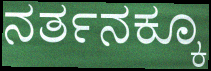
ನರ್ತನಕ್ಕೂ